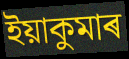
ইয়াকুমাৰ